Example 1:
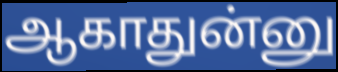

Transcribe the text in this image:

ஆகாதுன்னு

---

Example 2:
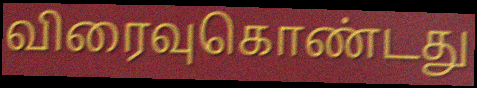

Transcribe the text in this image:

விரைவுகொண்டது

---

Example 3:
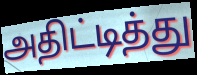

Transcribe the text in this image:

அதிட்டித்து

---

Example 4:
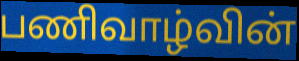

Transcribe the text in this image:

பணிவாழ்வின்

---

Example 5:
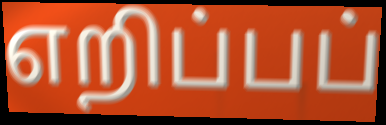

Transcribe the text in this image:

எறிப்பப்